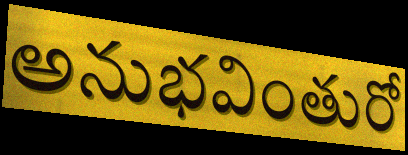
అనుభవింతురో